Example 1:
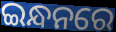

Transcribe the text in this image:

ଇନ୍ଧନରେ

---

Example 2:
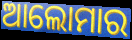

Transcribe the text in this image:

ଆଲୋମାର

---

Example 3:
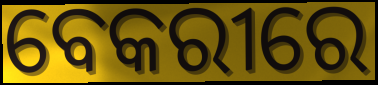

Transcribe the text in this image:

ବେକରୀରେ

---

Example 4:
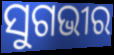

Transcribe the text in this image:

ସୁଗଭୀର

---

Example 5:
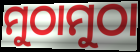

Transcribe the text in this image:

ମୁଠାମୁଠା